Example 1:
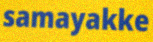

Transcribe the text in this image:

samayakke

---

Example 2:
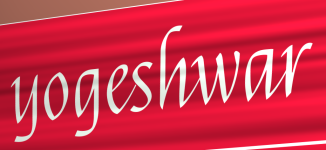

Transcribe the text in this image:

yogeshwar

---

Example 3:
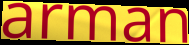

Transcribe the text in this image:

arman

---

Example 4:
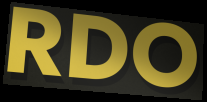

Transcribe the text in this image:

RDO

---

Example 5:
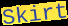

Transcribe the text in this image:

Skirt